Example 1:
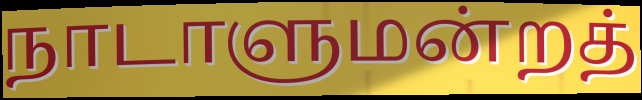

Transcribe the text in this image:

நாடாளுமன்றத்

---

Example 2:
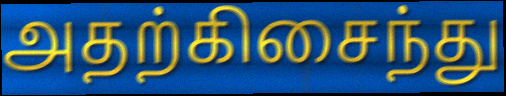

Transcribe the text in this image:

அதற்கிசைந்து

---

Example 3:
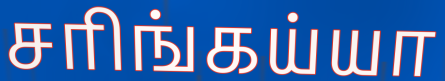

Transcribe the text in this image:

சரிங்கய்யா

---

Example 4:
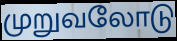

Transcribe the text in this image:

முறுவலோடு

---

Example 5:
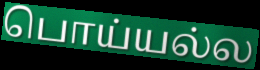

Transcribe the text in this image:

பொய்யல்ல